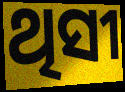
ଥିସୀ